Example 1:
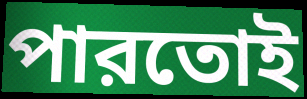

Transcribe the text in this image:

পারতোই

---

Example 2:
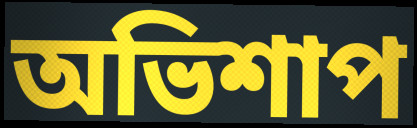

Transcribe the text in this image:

অভিশাপ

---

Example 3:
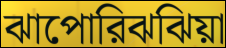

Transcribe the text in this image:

ঝাপোরিঝঝিয়া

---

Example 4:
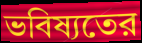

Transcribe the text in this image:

ভবিষ্যতের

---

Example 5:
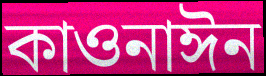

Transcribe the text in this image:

কাওনাঈন